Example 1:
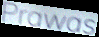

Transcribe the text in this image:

Prawas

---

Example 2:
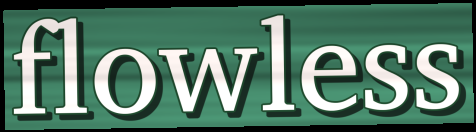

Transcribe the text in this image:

flowless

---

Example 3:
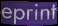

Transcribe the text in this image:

eprint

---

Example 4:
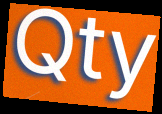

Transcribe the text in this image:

Qty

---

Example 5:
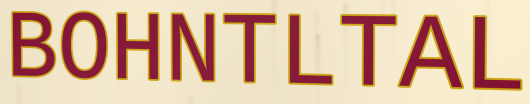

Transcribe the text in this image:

BOHNTLTAL